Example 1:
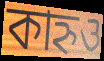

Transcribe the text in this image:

কাহ্নও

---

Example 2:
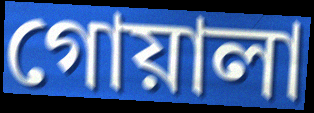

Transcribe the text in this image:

গোয়ালা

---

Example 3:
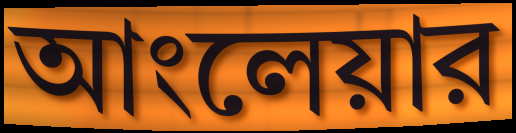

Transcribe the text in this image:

আংলেয়ার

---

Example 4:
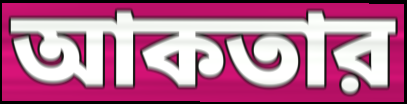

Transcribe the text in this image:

আকতার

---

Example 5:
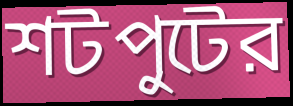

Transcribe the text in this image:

শটপুটের